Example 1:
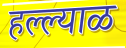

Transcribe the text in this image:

हल्ल्याळ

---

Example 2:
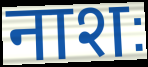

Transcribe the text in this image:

नाशः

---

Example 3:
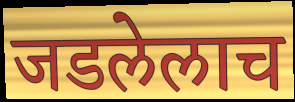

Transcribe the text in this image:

जडलेलाच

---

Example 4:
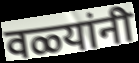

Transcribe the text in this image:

वळ्यांनी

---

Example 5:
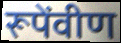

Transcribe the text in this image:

रूपेंवीण